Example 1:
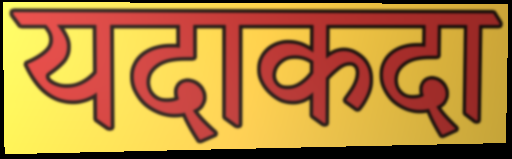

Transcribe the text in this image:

यदाकदा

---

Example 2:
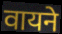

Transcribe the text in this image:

वायने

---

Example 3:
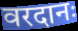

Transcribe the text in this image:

वरदानः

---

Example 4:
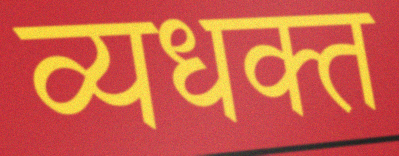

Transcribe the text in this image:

व्यधक्त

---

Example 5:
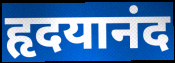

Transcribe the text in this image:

हृदयानंद